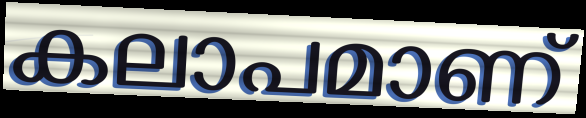
കലാപമാണ്